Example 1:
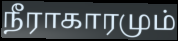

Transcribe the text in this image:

நீராகாரமும்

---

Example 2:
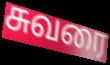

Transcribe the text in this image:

சுவரை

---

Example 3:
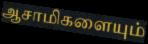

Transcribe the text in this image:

ஆசாமிகளையும்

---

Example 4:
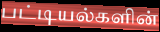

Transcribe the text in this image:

பட்டியல்களின்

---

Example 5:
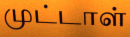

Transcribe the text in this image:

முட்டாள்